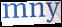
mny